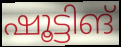
ഷൂട്ടിങ്